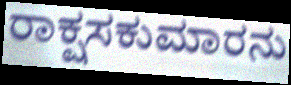
ರಾಕ್ಷಸಕುಮಾರನು